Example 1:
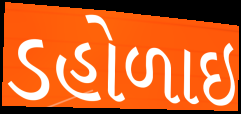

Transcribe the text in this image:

ડહોળાઇ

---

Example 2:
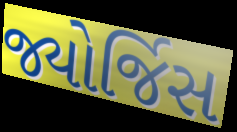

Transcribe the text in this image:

જ્યોર્જિસ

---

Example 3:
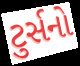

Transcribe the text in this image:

ટુર્સનો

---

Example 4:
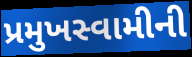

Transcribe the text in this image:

પ્રમુખસ્વામીની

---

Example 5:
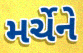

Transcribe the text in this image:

મર્ચેને